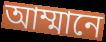
আম্মানে